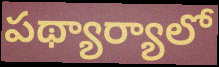
పథ్యార్యాలో